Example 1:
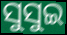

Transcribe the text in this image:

ସୁସୁଇ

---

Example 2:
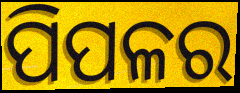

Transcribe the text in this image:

ପିପଳର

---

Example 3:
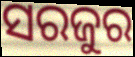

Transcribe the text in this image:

ସରଜୁର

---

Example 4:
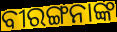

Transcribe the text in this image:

ବୀରଙ୍ଗନାଙ୍କ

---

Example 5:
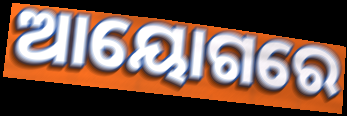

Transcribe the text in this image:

ଆୟୋଗରେ